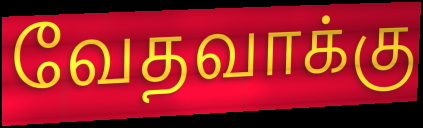
வேதவாக்கு